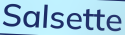
Salsette